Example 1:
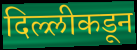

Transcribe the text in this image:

दिल्लीकडून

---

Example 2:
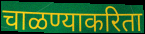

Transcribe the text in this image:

चाळण्याकरिता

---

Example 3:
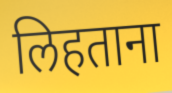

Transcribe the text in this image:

लिहताना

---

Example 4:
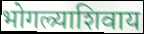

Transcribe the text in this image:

भोगल्याशिवाय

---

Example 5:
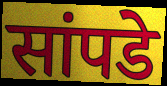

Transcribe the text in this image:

सांपडे